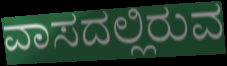
ವಾಸದಲ್ಲಿರುವ